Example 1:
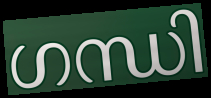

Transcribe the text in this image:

ഗന്ധി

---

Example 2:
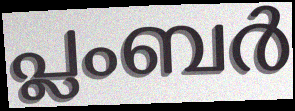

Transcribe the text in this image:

പ്ലംബർ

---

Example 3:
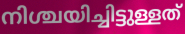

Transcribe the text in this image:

നിശ്ചയിച്ചിട്ടുള്ളത്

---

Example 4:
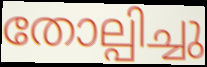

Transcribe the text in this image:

തോല്പിച്ചു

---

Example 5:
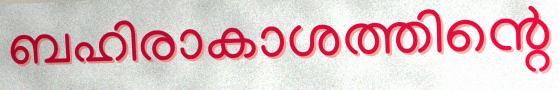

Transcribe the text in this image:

ബഹിരാകാശത്തിന്റെ